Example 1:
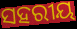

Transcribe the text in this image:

ସହରୀୟ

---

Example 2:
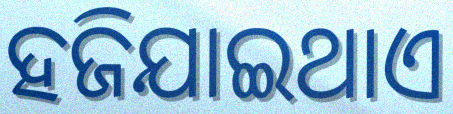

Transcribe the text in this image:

ହଜିଯାଇଥାଏ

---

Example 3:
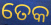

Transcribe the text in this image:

ତେକ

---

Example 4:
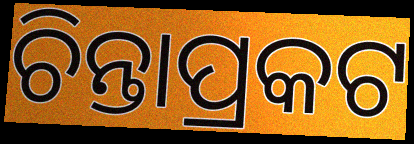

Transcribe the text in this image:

ଚିନ୍ତାପ୍ରକଟ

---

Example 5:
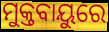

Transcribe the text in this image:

ମୁକ୍ତବାୟୁରେ